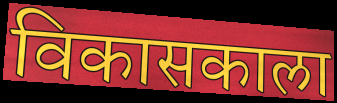
विकासकाला